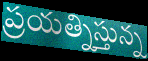
ప్రయత్నిస్తున్న